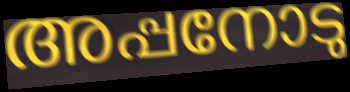
അപ്പനോടു